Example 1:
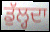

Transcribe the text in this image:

ਡੁੱਲ੍ਹਦਾ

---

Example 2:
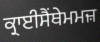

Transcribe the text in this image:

ਕ੍ਰਾਈਸੈਂਥੇਮਮਜ਼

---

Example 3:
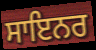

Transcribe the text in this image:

ਸਾਇਨਰ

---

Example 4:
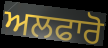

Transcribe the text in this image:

ਅਲਫਾਰੋ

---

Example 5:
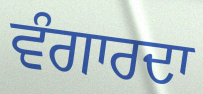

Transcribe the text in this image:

ਵੰਗਾਰਦਾ